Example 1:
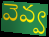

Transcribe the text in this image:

వెవ్వ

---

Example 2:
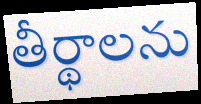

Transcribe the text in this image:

తీర్థాలను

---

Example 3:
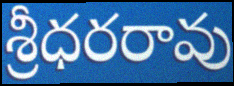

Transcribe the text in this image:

శ్రీధరరావు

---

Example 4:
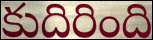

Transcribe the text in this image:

కుదిరింది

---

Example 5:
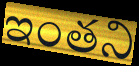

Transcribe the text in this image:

ఇంతని